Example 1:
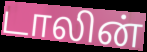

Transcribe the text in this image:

டாலின்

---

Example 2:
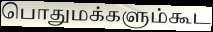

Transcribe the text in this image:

பொதுமக்களும்கூட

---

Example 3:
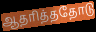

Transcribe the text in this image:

ஆதரித்ததோடு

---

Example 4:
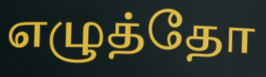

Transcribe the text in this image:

எழுத்தோ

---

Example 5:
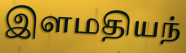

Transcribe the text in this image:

இளமதியந்